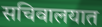
सचिवालयात